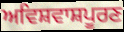
ਅਵਿਸ਼ਵਾਸ਼ਪੂਰਣ